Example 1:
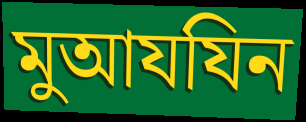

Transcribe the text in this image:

মুআযযিন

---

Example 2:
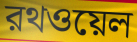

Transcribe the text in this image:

রথওয়েল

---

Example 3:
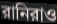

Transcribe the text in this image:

রানিরাও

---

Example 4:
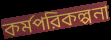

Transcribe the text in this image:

কর্মপরিকল্পনা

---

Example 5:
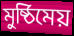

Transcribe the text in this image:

মুষ্ঠিমেয়